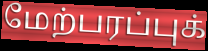
மேற்பரப்புக்